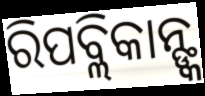
ରିପବ୍ଲିକାନ୍ଙ୍କ